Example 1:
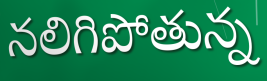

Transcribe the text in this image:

నలిగిపోతున్న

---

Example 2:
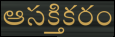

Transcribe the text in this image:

ఆసక్తికరం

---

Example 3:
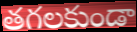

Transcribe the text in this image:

తగలకుండా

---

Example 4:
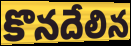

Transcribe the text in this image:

కొనదేలిన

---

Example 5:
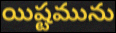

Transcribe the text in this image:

యిష్టమును